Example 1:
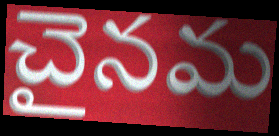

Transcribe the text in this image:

చైనమ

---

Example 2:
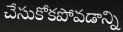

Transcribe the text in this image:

చేసుకోకపోవడాన్ని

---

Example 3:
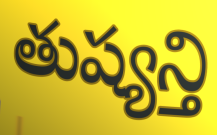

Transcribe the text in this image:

తుష్యన్తి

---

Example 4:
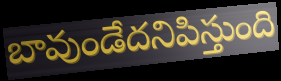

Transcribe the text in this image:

బావుండేదనిపిస్తుంది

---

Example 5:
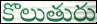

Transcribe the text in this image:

కొలుతురు